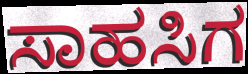
ಸಾಹಸಿಗ